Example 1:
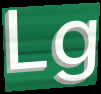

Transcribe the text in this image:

Lg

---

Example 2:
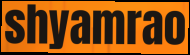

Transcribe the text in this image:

shyamrao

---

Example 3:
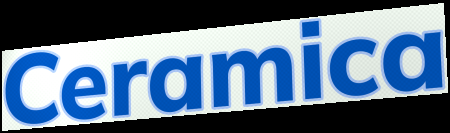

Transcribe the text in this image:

Ceramica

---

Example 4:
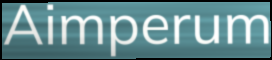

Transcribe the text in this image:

Aimperum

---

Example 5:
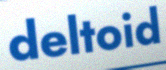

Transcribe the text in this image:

deltoid